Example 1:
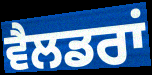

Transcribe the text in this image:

ਵੈਲਡਰਾਂ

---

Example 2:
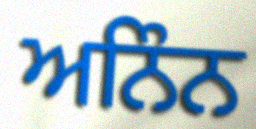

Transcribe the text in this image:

ਅਨਿੰਨ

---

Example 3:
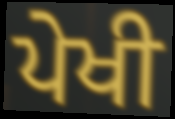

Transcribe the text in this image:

ਪੇਖੀ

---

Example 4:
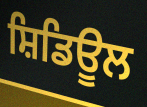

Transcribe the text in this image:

ਸ਼ਿਡਿਊਲ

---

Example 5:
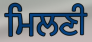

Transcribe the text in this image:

ਮਿਲਣੀ